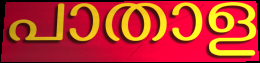
പാതാള